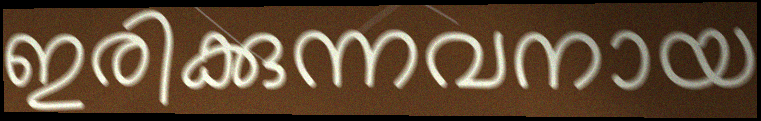
ഇരിക്കുന്നവനായ